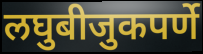
लघुबीजुकपर्णे